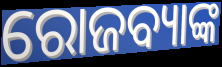
ରୋଜବ୍ୟାଙ୍କ